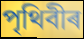
পৃথিবীৰ